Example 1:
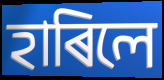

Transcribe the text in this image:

হাৰিলে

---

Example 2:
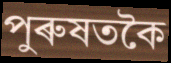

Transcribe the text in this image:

পুৰুষতকৈ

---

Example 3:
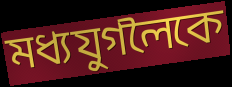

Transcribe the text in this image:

মধ্যযুগলৈকে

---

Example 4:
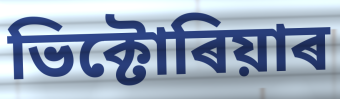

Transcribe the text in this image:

ভিক্টোৰিয়াৰ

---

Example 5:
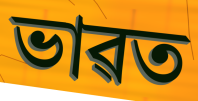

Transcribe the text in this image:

ভাৱত